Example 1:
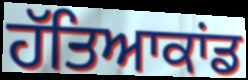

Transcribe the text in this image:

ਹੱਤਿਆਕਾਂਡ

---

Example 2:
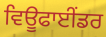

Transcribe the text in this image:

ਵਿਊਫਾਈਂਡਰ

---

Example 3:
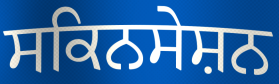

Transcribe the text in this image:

ਸਕਿਨਸੇਸ਼ਨ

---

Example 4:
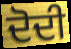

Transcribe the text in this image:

ਦੋਦੀ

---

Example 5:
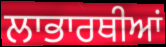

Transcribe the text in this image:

ਲਾਭਾਰਥੀਆਂ